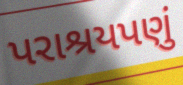
પરાશ્રયપણું